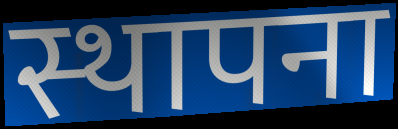
स्थापना